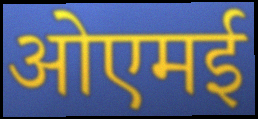
ओएमई